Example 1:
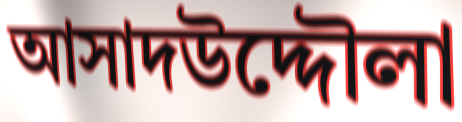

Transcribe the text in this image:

আসাদউদ্দৌলা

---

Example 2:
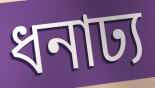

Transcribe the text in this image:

ধনাঢ্য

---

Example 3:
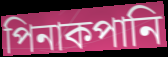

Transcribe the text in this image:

পিনাকপানি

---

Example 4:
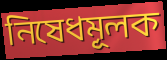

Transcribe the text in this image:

নিষেধমূলক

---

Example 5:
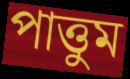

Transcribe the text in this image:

পাত্তুম